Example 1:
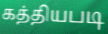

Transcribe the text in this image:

கத்தியபடி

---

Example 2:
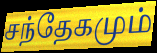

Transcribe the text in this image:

சந்தேகமும்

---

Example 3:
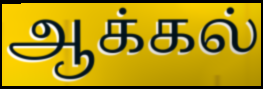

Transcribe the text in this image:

ஆக்கல்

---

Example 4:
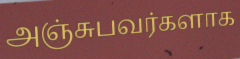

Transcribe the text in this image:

அஞ்சுபவர்களாக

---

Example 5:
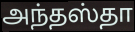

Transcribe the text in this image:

அந்தஸ்தா